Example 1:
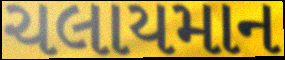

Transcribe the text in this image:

ચલાયમાન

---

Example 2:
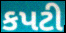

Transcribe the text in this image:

કપટી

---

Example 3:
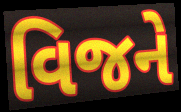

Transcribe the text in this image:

વિજને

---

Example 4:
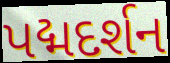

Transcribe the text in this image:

પદ્મદર્શન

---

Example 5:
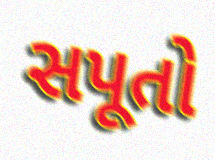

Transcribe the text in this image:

સપૂતો